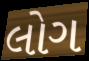
લોગ